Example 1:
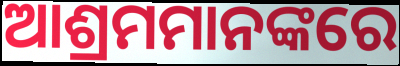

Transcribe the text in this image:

ଆଶ୍ରମମାନଙ୍କରେ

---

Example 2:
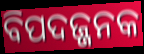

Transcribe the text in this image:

ବିପଦଜ୍ଜନକ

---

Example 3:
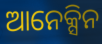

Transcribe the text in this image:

ଆନେକ୍ସିନ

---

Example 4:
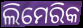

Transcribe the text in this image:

ଲିମେରିକ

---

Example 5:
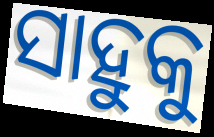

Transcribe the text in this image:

ସାହୁକୁ